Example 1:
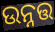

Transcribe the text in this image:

ଉନ୍ନତ୍ତ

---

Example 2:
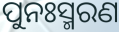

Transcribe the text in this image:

ପୁନଃସ୍ମରଣ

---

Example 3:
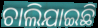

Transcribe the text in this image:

ଚାଲିଯାଇଛି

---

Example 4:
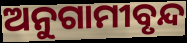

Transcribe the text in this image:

ଅନୁଗାମୀବୃନ୍ଦ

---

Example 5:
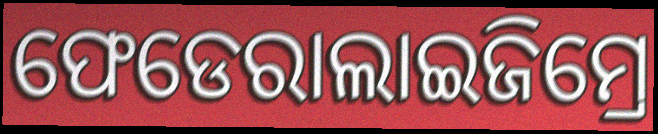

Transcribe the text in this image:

ଫେଡେରାଲାଇଜିମ୍ରେ